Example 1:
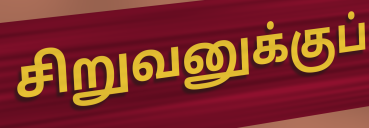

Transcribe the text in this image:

சிறுவனுக்குப்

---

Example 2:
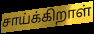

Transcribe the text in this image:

சாய்க்கிறாள்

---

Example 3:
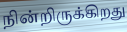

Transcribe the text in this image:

நின்றிருக்கிறது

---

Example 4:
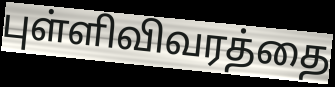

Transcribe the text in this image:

புள்ளிவிவரத்தை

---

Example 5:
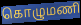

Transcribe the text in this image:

கொழுமணி